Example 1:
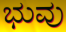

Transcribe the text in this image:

ಭುವು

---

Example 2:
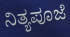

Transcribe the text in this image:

ನಿತ್ಯಪೂಜೆ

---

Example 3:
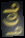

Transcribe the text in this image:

ತ್ತೆ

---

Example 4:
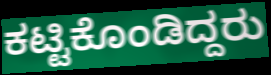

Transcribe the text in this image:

ಕಟ್ಟಿಕೊಂಡಿದ್ದರು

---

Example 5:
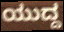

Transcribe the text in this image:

ಯುದ್ದ